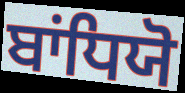
ਬਾਂਧਿਯੋ